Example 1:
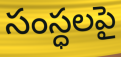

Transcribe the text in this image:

సంస్ధలపై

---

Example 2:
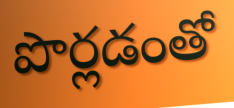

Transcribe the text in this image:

పొర్లడంతో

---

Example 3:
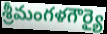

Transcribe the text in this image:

శ్రీమంగళగౌర్యై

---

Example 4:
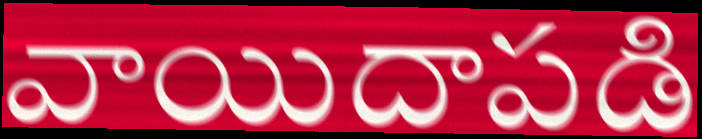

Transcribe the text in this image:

వాయిదాపడి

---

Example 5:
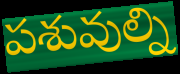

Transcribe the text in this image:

పశువుల్ని